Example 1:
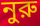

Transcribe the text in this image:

নুরু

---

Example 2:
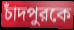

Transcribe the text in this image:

চাঁদপুরকে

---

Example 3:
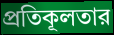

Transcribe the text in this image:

প্রতিকূলতার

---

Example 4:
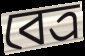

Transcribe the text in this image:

বেত্র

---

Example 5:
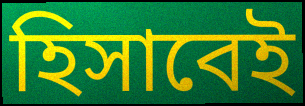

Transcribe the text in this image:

হিসাবেই